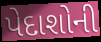
પેદાશોની